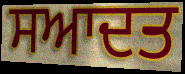
ਸਆਦਤ